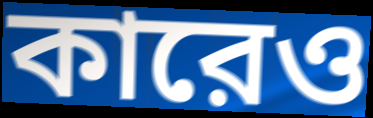
কারেও